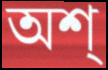
অশ্